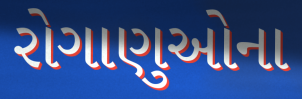
રોગાણુઓના